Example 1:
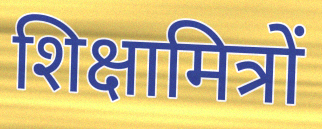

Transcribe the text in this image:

शिक्षामित्रों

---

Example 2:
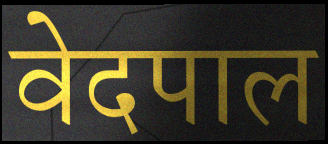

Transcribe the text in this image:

वेदपाल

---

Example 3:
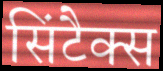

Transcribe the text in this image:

सिंटैक्स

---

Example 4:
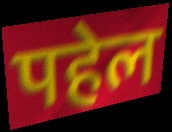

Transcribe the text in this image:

पहेल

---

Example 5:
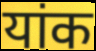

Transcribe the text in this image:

यांक